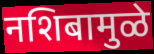
नशिबामुळे